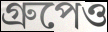
গ্রুপেও